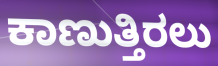
ಕಾಣುತ್ತಿರಲು